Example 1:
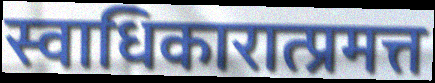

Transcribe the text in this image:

स्वाधिकारात्प्रमत्त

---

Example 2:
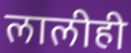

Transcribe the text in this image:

लालीही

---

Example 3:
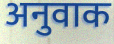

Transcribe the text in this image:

अनुवाक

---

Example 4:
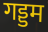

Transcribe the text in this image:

गड्डम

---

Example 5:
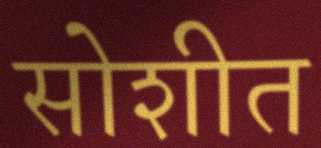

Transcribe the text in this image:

सोशीत